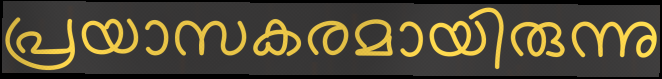
പ്രയാസകരമായിരുന്നു